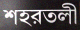
শহরতলী